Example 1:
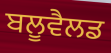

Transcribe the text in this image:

ਬਲੂਵੈਲਡ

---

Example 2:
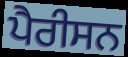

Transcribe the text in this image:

ਪੈਰੀਸਨ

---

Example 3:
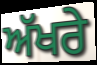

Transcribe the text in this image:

ਅੱਖਰੇ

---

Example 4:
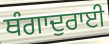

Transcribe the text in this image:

ਥੰਗਾਦੁਰਾਈ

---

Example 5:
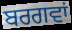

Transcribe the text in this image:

ਬਰਗਵਾਂ